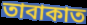
তাবাকাত